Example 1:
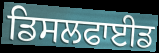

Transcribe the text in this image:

ਡਿਸਲਫਾਈਡ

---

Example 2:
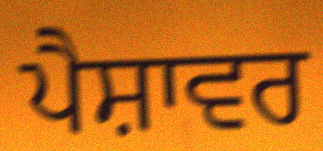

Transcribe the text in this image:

ਪੈਸ਼ਾਵਰ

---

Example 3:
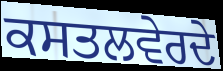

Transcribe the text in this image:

ਕਸਤਲਵੇਰਦੇ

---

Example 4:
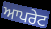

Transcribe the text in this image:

ਆਪਰੇਟ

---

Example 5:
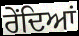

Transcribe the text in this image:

ਰੇਂਦਿਆਂ